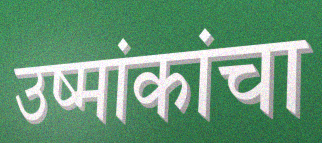
उष्मांकांचा